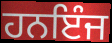
ਹਨਇੰਜ